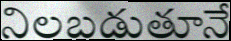
నిలబడుతూనే